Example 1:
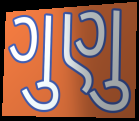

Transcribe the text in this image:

ગુણુ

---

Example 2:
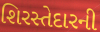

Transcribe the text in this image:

શિરસ્તેદારની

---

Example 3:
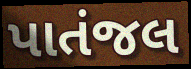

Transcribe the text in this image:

પાતંજલ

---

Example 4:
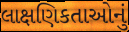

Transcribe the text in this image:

લાક્ષણિકતાઓનું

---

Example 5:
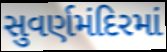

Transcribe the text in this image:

સુવર્ણમંદિરમાં